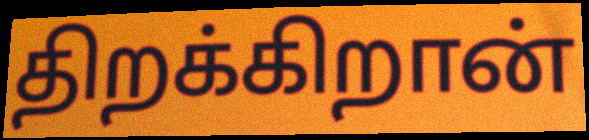
திறக்கிறான்